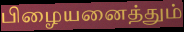
பிழையனைத்தும்